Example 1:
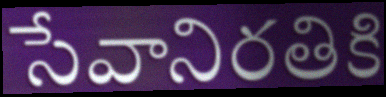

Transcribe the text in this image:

సేవానిరతికి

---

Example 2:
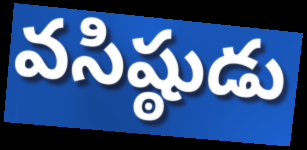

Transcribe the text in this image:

వసిష్ఠుడు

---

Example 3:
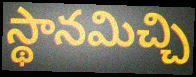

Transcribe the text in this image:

స్థానమిచ్చి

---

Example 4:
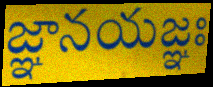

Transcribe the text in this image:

జ్ఞానయజ్ఞః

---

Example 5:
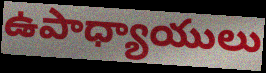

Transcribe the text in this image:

ఉపాధ్యాయులు